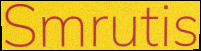
Smrutis